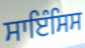
ਸਾਇੰਸਿਸ